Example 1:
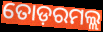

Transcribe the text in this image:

ତୋଡ଼ରମଲ୍ଲ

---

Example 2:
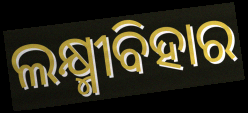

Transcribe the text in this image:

ଲକ୍ଷ୍ମୀବିହାର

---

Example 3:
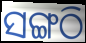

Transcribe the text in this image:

ସଙ୍ଗଠି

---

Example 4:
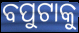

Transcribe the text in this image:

ବପୁଟାକୁ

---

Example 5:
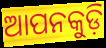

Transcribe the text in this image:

ଆପନକୁଡ଼ି